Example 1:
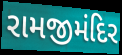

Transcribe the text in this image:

રામજીમંદિર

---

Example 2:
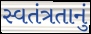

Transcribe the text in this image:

સ્વતંત્રતાનું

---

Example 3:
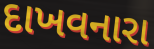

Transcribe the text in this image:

દાખવનારા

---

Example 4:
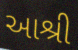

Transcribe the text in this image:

આશ્રી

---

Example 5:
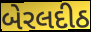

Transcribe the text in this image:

બેરલદીઠ